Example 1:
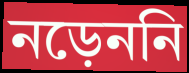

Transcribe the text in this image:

নড়েননি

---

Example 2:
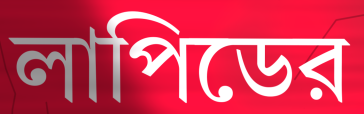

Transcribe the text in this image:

লাপিডের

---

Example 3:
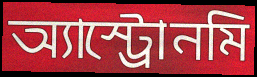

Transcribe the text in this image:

অ্যাস্ট্রোনমি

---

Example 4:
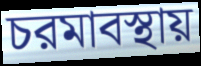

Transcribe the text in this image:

চরমাবস্থায়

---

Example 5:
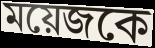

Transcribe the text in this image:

ময়েজকে